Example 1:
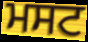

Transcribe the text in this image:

ਮਸਟ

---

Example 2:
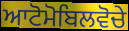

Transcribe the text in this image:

ਆਟੋਮੋਬਿਲਵੋਚੇ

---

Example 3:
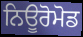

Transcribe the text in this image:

ਨਿਊਰੋਮੋਡ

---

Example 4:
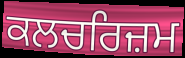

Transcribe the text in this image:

ਕਲਚਰਿਜ਼ਮ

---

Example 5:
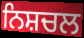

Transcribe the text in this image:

ਨਿਸ਼ਚਲ